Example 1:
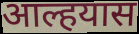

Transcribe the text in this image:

आल्हयास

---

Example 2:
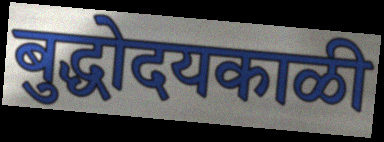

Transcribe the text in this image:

बुद्धोदयकाळी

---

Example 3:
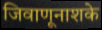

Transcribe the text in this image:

जिवाणूनाशके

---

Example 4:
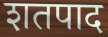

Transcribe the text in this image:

शतपाद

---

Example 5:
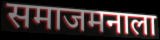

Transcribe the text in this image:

समाजमनाला